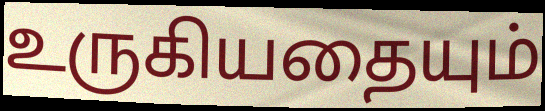
உருகியதையும்